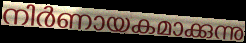
നിർണായകമാക്കുന്നു